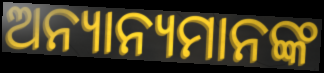
ଅନ୍ୟାନ୍ୟମାନଙ୍କ